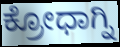
ಕ್ರೋಧಾಗ್ನಿ